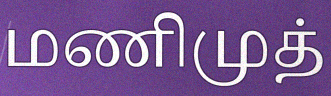
மணிமுத்